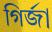
গির্জা